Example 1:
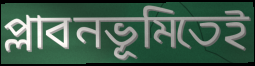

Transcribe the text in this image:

প্লাবনভূমিতেই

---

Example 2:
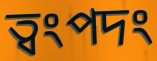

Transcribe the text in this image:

ত্বংপদং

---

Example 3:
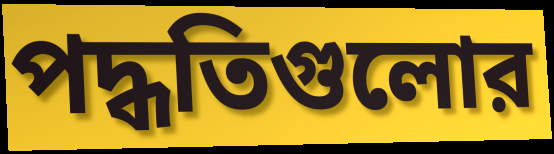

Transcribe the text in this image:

পদ্ধতিগুলোর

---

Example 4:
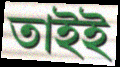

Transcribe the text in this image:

তাইই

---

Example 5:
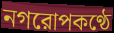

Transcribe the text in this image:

নগরোপকণ্ঠে